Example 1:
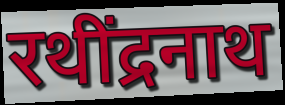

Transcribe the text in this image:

रथींद्रनाथ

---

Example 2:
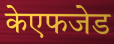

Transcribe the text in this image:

केएफजेड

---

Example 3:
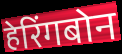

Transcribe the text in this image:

हेरिंगबोन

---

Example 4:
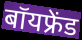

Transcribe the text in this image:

बॉयफ्रेंड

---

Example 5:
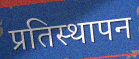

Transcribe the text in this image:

प्रतिस्थापन